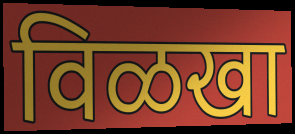
विळखा